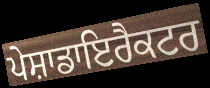
ਪੇਸ਼ਾਡਾਇਰੈਕਟਰ